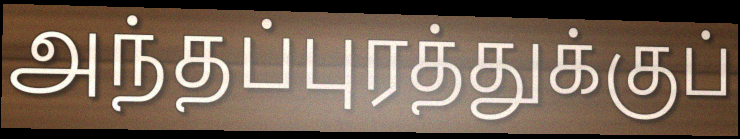
அந்தப்புரத்துக்குப்